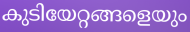
കുടിയേറ്റങ്ങളെയും